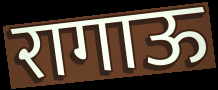
रागाऊ